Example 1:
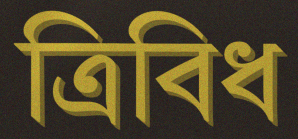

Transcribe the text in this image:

ত্রিবিধ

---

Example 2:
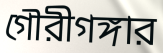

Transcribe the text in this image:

গৌরীগঙ্গার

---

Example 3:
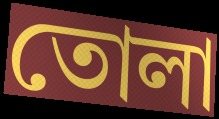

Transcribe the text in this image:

তোলা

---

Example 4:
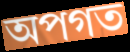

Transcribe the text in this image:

অপগত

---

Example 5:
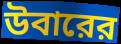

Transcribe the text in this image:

উবারের